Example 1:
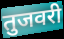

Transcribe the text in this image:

तुजवरी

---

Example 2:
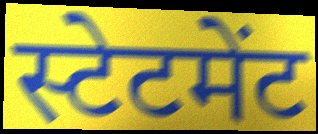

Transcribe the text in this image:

स्टेटमेंट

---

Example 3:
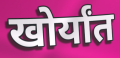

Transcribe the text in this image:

खोर्यांत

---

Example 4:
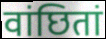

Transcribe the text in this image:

वांछितां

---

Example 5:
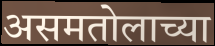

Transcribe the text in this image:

असमतोलाच्या